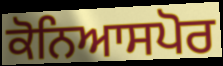
ਕੋਨਿਆਸਪੋਰ